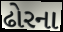
ઢોરના